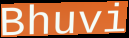
Bhuvi